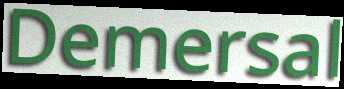
Demersal